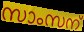
സാംസന്